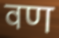
वण